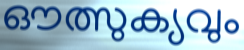
ഔത്സുക്യവും